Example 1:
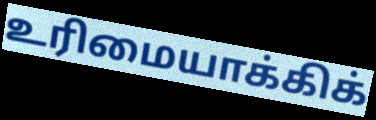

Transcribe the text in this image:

உரிமையாக்கிக்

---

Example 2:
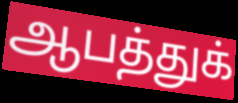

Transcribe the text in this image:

ஆபத்துக்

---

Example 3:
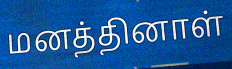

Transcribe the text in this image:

மனத்தினாள்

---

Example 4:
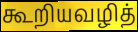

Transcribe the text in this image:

கூறியவழித்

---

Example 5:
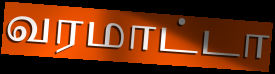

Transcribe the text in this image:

வரமாட்டா